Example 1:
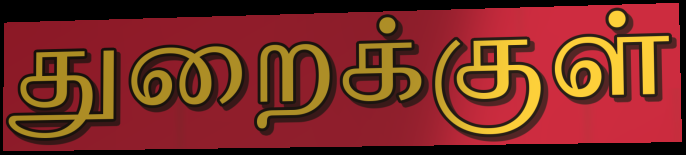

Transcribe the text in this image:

துறைக்குள்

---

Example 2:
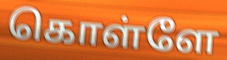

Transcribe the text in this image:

கொள்ளே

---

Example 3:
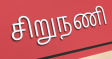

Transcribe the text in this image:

சிறுநணி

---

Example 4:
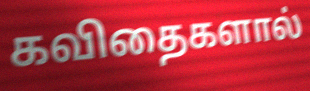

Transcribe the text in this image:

கவிதைகளால்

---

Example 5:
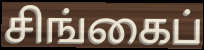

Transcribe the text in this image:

சிங்கைப்